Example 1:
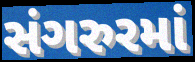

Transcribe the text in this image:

સંગરુરમાં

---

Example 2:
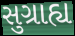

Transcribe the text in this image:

સુગ્રાહ્ય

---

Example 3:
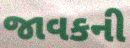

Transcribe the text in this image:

જાવકની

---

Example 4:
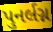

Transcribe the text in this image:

પુનર્લગ્ન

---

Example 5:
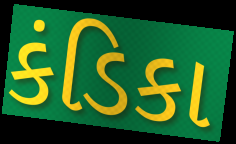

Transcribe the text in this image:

કંડિકા